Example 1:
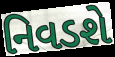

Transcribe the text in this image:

નિવડશે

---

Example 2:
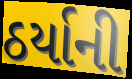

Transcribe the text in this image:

ઠર્યાની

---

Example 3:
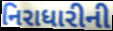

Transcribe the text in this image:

નિરાધારીની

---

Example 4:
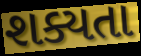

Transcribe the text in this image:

શક્યતા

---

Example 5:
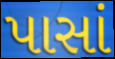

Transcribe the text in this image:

પાસાં